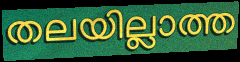
തലയില്ലാത്ത